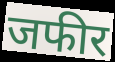
जफीर